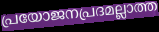
പ്രയോജനപ്രദമല്ലാത്ത